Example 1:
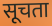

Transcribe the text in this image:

सूचता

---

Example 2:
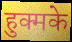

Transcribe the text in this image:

हुक्मके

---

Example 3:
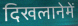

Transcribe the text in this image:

दिखलानेमें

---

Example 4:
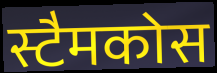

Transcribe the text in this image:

स्टैमकोस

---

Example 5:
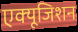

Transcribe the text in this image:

एक्यूजिशन